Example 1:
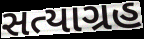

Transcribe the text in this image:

સત્યાગ્રહ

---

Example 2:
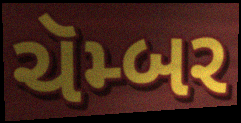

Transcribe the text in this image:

ચૅમ્બર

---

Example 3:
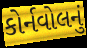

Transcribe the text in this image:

કોર્નવોલનું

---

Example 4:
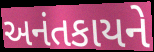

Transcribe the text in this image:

અનંતકાયને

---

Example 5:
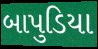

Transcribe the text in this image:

બાપુડિયા